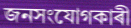
জনসংযোগকাৰী